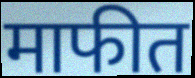
माफीत